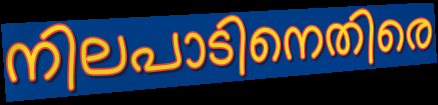
നിലപാടിനെതിരെ